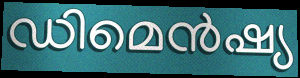
ഡിമെൻഷ്യ